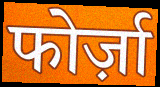
फोर्ज़ा